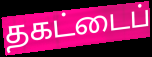
தகட்டைப்